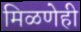
मिळणेही